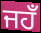
ਜਹਁ